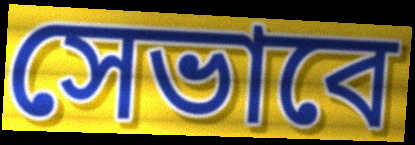
সেভাবে